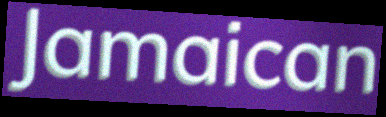
Jamaican